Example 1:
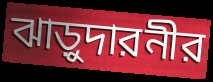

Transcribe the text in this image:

ঝাড়ুদারনীর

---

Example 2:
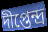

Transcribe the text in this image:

দীপ্তেন্দ্র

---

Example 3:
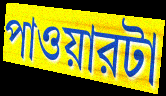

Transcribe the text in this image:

পাওয়ারটা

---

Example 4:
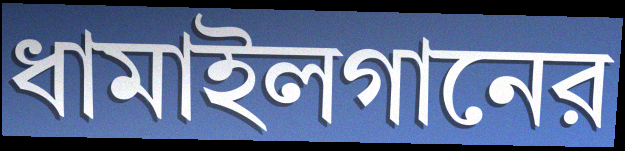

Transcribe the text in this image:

ধামাইলগানের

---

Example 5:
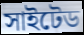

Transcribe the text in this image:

সাইটেড